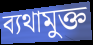
ব্যথামুক্ত